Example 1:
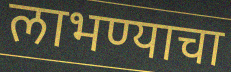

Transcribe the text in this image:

लाभण्याचा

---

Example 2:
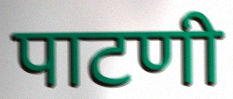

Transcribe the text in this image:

पाटणी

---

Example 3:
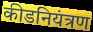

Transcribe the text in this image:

कीडनियंत्रण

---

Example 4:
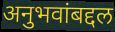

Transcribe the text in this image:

अनुभवांबद्दल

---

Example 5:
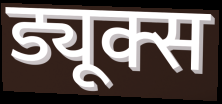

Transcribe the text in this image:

ड्यूक्स